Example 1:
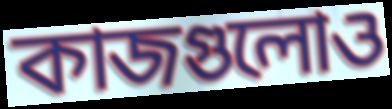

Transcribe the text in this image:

কাজগুলোও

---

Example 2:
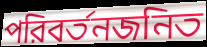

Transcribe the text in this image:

পরিবর্তনজনিত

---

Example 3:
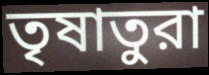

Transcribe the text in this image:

তৃষাতুরা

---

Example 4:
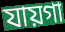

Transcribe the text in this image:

যায়গা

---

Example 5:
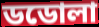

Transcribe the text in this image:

ডডোলা